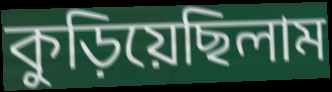
কুড়িয়েছিলাম